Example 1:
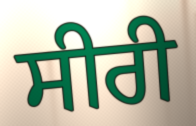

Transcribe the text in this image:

ਸੀਰੀ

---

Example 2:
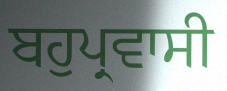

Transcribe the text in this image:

ਬਹੁਪ੍ਰਵਾਸੀ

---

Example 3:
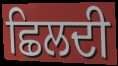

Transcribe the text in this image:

ਛਿਲਦੀ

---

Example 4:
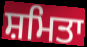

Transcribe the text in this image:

ਸ਼ਮਿਤਾ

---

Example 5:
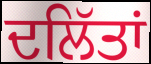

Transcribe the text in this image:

ਦਲਿੱਤਾਂ